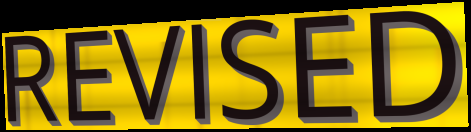
REVISED